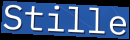
Stille